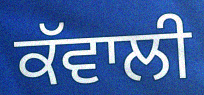
ਕੱਵਾਲੀ